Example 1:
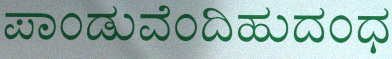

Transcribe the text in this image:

ಪಾಂಡುವೆಂದಿಹುದಂಧ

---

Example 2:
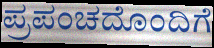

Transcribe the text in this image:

ಪ್ರಪಂಚದೊಂದಿಗೆ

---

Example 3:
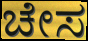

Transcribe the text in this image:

ಚೇಸ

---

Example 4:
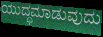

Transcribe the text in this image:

ಯುದ್ಧಮಾಡುವುದು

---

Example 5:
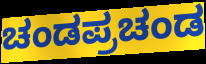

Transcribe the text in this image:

ಚಂಡಪ್ರಚಂಡ